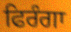
ਫਿਰੰਗਾ